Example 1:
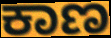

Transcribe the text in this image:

ಕಾಣ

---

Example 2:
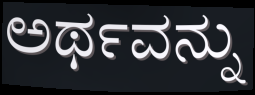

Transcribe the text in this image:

ಅರ್ಥವನ್ನು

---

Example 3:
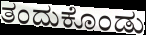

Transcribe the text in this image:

ತಂದುಕೊಂಡು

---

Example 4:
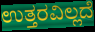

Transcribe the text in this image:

ಉತ್ತರವಿಲ್ಲದೆ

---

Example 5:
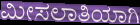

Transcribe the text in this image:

ಮೀಸಲಾತಿಯಾಗಿ